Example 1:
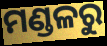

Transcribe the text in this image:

ମଣ୍ଡଳରୁ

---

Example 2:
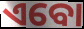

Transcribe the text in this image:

ଏବୋ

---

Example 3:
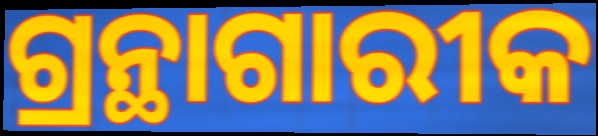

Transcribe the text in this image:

ଗ୍ରନ୍ଥାଗାରୀକ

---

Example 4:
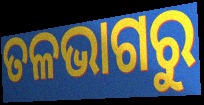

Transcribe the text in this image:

ତଳଭାଗରୁ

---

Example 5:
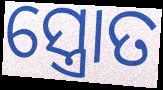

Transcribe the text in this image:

ସ୍ତ୍ରୋତ